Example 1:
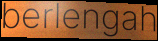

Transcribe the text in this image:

berlengah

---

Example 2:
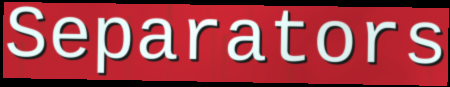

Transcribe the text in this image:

Separators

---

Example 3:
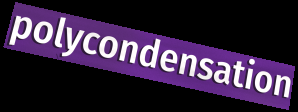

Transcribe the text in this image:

polycondensation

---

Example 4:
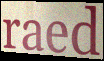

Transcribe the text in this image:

raed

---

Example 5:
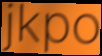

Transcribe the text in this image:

jkpo